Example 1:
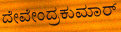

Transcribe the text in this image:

ದೇವೇಂದ್ರಕುಮಾರ್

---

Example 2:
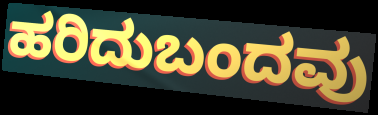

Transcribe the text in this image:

ಹರಿದುಬಂದವು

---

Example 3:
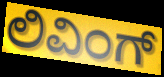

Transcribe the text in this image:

ಲಿವಿಂಗ್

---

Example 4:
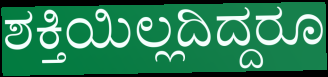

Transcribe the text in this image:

ಶಕ್ತಿಯಿಲ್ಲದಿದ್ದರೂ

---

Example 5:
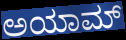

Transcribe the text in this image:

ಅಯಾಮ್